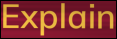
Explain